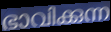
ഭാവിക്കുന്ന